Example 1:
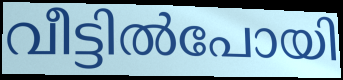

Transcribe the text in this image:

വീട്ടിൽപോയി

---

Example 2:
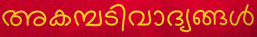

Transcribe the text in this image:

അകമ്പടിവാദ്യങ്ങൾ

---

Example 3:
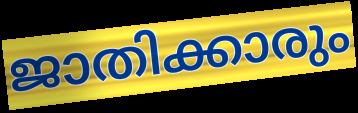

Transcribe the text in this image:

ജാതിക്കാരും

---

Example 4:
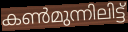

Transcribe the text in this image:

കൺമുന്നിലിട്ട്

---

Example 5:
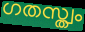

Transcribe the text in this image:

ഗതസ്ത്വം